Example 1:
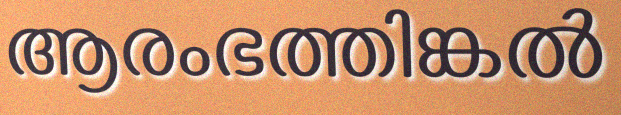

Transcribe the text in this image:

ആരംഭത്തിങ്കൽ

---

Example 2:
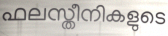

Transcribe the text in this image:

ഫലസ്തീനികളുടെ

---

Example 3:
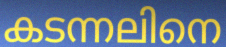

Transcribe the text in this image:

കടന്നലിനെ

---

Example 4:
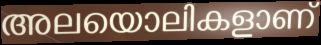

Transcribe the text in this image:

അലയൊലികളാണ്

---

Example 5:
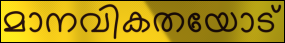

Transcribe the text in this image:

മാനവികതയോട്